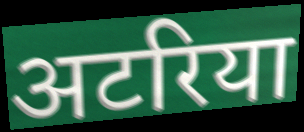
अटरिया